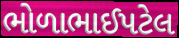
ભોળાભાઈપટેલ